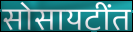
सोसायटींत